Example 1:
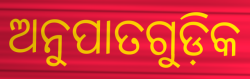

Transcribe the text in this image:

ଅନୁପାତଗୁଡ଼ିକ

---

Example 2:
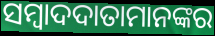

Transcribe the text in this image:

ସମ୍ବାଦଦାତାମାନଙ୍କର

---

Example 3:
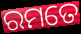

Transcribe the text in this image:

ରମତେ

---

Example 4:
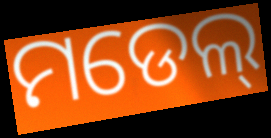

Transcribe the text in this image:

ମଡେଲ୍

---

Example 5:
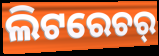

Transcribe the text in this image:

ଲିଟରେଚର୍